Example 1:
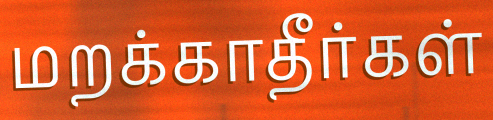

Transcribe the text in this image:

மறக்காதீர்கள்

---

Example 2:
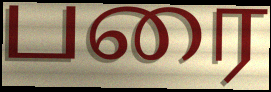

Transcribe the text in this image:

பரை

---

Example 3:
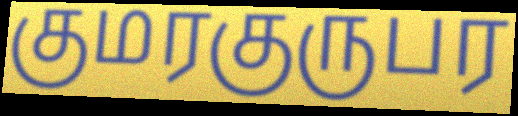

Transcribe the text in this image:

குமரகுருபர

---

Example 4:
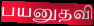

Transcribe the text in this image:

பயனுதவி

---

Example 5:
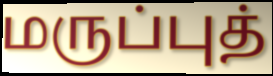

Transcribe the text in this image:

மருப்புத்